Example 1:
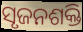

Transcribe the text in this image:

ସୃଜନଶକ୍ତି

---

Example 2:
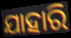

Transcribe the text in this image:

ଯାହାରି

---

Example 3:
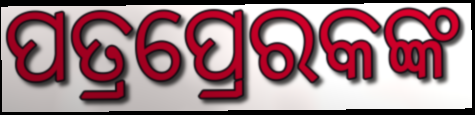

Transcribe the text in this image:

ପତ୍ରପ୍ରେରକଙ୍କ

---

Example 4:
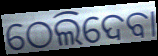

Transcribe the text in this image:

ଠେଲିଦେବା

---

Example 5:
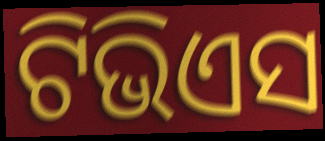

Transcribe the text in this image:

ଟିଭିଏସ